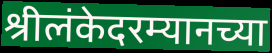
श्रीलंकेदरम्यानच्या